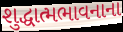
શુદ્ધાત્મભાવનાના